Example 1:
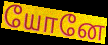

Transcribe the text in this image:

யோனே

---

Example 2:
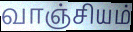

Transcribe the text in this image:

வாஞ்சியம்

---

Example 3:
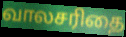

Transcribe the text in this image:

வாலசரிதை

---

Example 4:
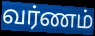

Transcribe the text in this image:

வர்ணம்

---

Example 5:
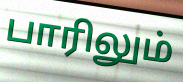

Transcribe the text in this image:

பாரிலும்